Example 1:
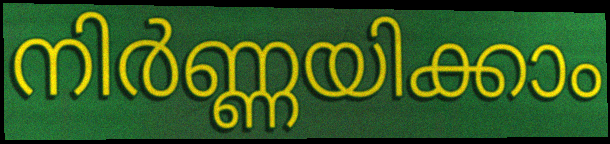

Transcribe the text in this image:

നിർണ്ണയിക്കാം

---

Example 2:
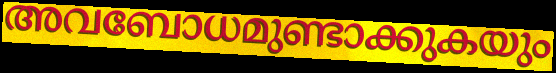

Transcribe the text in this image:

അവബോധമുണ്ടാക്കുകയും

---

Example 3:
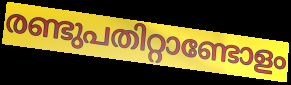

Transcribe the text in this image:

രണ്ടുപതിറ്റാണ്ടോളം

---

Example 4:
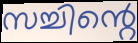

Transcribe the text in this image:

സച്ചിന്റെ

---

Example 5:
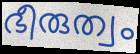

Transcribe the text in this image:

ഭീരുത്വം